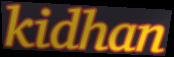
kidhan